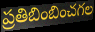
ప్రతిబింబించగల